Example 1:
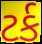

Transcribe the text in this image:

ટર્ક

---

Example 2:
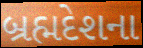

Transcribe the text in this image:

બ્રહ્મદેશના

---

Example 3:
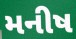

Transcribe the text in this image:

મનીષ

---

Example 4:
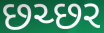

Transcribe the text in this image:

છચ્છર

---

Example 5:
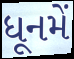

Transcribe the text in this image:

ધૂનમેં